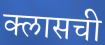
क्लासची